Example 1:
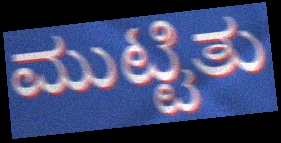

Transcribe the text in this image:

ಮುಟ್ಟಿತು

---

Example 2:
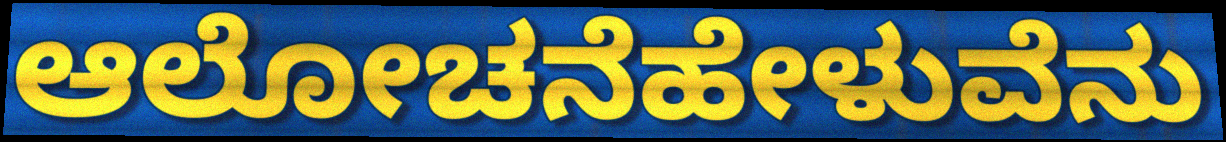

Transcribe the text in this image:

ಆಲೋಚನೆಹೇಳುವೆನು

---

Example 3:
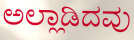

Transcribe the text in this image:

ಅಲ್ಲಾಡಿದವು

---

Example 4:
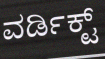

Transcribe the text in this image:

ವರ್ಡಿಕ್ಟ್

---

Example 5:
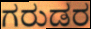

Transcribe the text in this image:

ಗರುಡರ